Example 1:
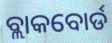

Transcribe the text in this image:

ବ୍ଲାକବୋର୍ଡ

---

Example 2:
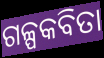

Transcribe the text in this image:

ଗଳ୍ପକବିତା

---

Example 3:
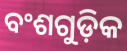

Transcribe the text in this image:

ବଂଶଗୁଡ଼ିକ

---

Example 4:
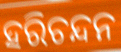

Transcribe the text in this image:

ହରିଚନ୍ଦନ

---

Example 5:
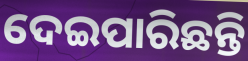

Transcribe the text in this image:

ଦେଇପାରିଛନ୍ତି